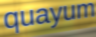
quayum